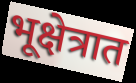
भूक्षेत्रात